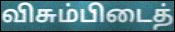
விசும்பிடைத்